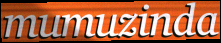
mumuzinda